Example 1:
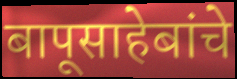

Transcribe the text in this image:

बापूसाहेबांचे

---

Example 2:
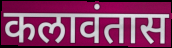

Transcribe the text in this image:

कलावंतास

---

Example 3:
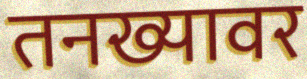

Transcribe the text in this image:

तनख्यावर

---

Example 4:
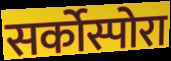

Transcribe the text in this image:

सर्कोस्पोरा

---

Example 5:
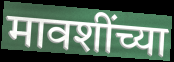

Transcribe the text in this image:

मावशींच्या